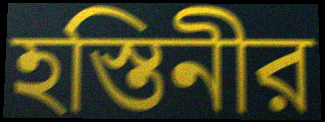
হস্তিনীর